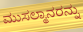
ಮುಸಲ್ಮಾನರನ್ನು